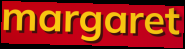
margaret